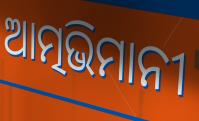
ଆତ୍ମଭିମାନୀ